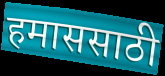
हमाससाठी